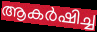
ആകർഷിച്ച